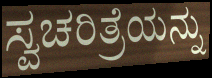
ಸ್ವಚರಿತ್ರೆಯನ್ನು